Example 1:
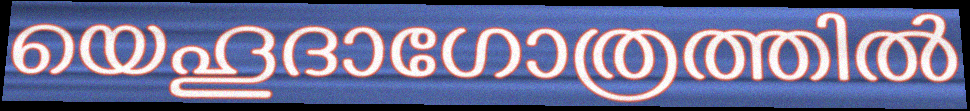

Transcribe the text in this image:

യെഹൂദാഗോത്രത്തിൽ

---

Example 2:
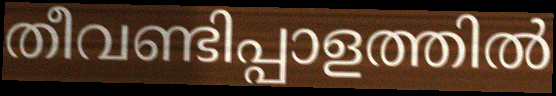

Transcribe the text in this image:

തീവണ്ടിപ്പാളത്തിൽ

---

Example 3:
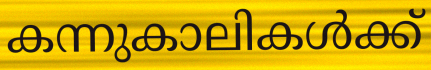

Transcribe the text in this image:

കന്നുകാലികൾക്ക്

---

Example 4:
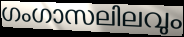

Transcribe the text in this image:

ഗംഗാസലിലവും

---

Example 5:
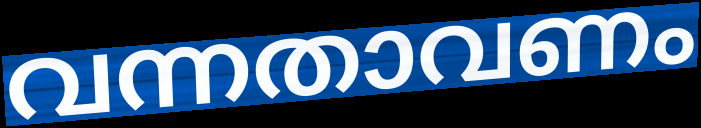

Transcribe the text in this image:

വന്നതാവണം